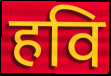
हवि